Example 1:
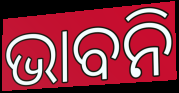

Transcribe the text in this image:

ଭାବନି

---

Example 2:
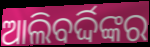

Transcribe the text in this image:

ଆଲିବର୍ଦ୍ଦିଙ୍କର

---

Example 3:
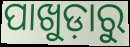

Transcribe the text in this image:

ପାଖୁଡ଼ାରୁ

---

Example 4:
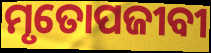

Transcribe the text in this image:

ମୃତୋପଜୀବୀ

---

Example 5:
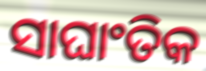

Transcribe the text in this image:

ସାଘାଂତିକ